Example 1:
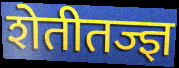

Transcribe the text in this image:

शेतीतज्ज्ञ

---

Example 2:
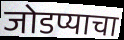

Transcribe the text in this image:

जोडप्याचा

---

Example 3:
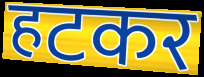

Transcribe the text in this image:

हटकर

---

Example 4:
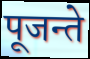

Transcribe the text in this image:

पूजन्ते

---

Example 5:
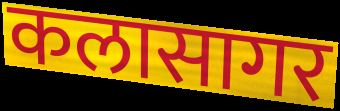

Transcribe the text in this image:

कलासागर